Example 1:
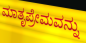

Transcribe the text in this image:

ಮಾತೃಪ್ರೇಮವನ್ನು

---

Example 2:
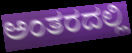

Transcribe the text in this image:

ಅಂತರದಲ್ಲಿ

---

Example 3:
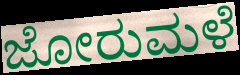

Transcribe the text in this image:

ಜೋರುಮಳೆ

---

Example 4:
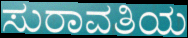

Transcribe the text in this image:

ಸುರಾವತಿಯ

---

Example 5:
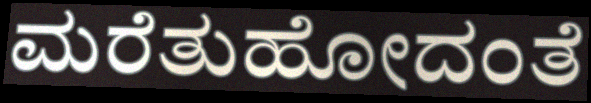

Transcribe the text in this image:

ಮರೆತುಹೋದಂತೆ